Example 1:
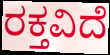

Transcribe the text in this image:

ರಕ್ತವಿದೆ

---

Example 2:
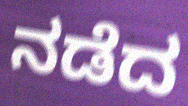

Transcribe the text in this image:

ನಡೆದ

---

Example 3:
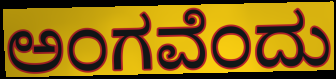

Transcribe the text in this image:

ಅಂಗವೆಂದು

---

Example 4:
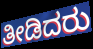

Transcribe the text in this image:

ತೀಡಿದರು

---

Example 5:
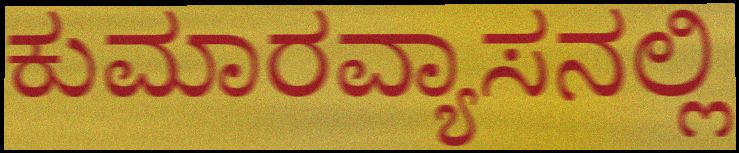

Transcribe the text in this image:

ಕುಮಾರವ್ಯಾಸನಲ್ಲಿ